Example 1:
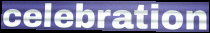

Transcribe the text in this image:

celebration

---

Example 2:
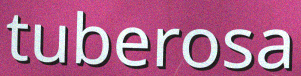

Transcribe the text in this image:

tuberosa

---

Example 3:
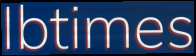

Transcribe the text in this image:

Ibtimes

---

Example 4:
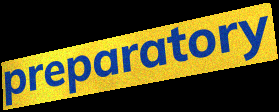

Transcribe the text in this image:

preparatory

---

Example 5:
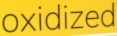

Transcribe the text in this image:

oxidized